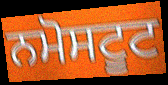
ਨਮੋਸਟੂਟ